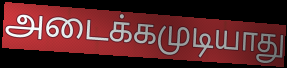
அடைக்கமுடியாது